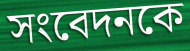
সংবেদনকে